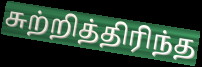
சுற்றித்திரிந்த